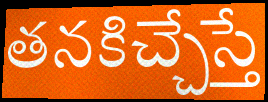
తనకిచ్చేస్తే